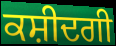
ਕਸ਼ੀਦਗੀ